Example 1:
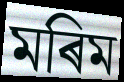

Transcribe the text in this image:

মৰিম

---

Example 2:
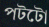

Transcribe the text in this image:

পটটো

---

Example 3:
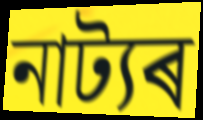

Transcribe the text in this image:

নাট্যৰ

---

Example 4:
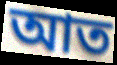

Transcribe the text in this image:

আত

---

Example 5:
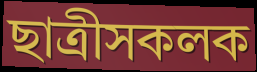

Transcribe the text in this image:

ছাত্ৰীসকলক